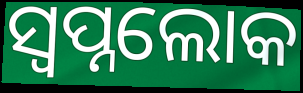
ସ୍ଵପ୍ନଲୋକ